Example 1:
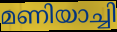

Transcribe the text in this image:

മണിയാച്ചി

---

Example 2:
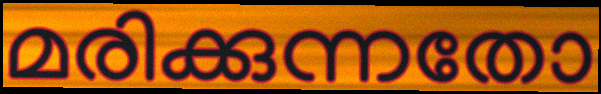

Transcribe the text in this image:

മരിക്കുന്നതോ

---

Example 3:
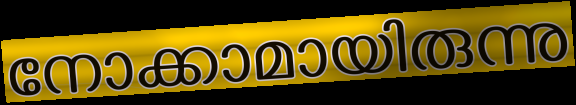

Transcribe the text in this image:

നോക്കാമായിരുന്നു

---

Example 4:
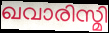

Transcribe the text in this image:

ഖവാരിസ്മി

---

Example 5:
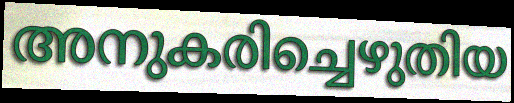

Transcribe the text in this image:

അനുകരിച്ചെഴുതിയ